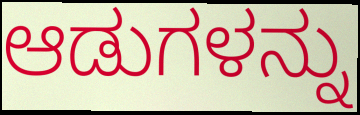
ಆಡುಗಳನ್ನು